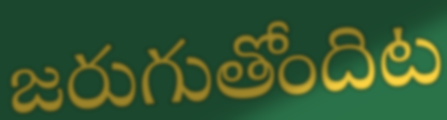
జరుగుతోందిట